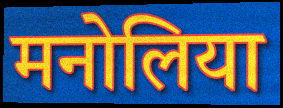
मनोलिया